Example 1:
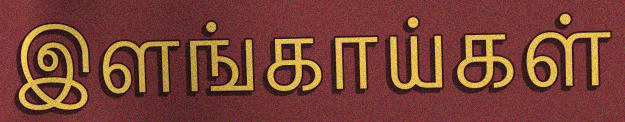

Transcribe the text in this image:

இளங்காய்கள்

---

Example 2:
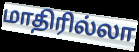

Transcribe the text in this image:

மாதிரில்லா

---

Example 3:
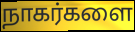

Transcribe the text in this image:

நாகர்களை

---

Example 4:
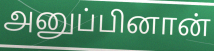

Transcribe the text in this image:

அனுப்பினான்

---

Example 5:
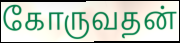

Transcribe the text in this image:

கோருவதன்